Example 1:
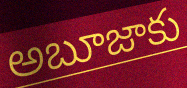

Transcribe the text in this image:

అబూజాకు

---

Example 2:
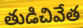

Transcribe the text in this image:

తుడిచివేత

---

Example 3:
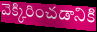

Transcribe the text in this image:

వెక్కిరించడానికి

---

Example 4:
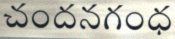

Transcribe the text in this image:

చందనగంధ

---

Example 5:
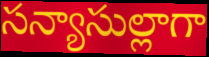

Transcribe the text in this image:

సన్యాసుల్లాగా